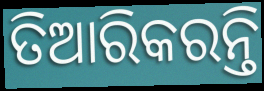
ତିଆରିକରନ୍ତି